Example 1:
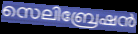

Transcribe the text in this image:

സെലിബ്രേഷൻ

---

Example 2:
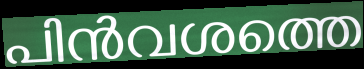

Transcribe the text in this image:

പിൻവശത്തെ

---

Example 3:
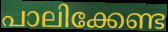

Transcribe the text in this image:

പാലിക്കേണ്ട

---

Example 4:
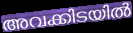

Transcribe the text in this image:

അവക്കിടയിൽ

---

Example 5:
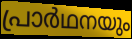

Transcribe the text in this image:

പ്രാർഥനയും